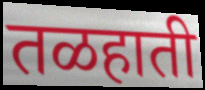
तळहाती